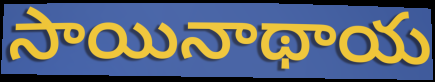
సాయినాథాయ